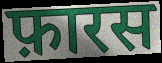
फ़ारस